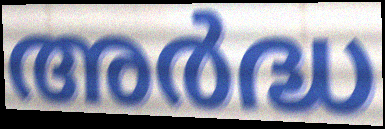
അർദ്ധ